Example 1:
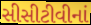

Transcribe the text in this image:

સીસીટીવીનાં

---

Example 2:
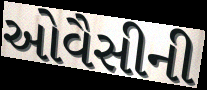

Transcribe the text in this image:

ઓવૈસીની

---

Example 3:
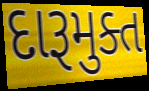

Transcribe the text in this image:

દારૂમુક્ત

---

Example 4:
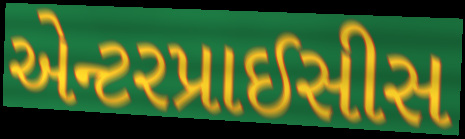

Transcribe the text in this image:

એન્ટરપ્રાઈસીસ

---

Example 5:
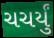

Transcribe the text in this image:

ચચર્યું